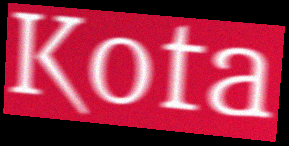
Kota